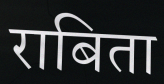
राबिता